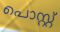
പൊസ്റ്റ്